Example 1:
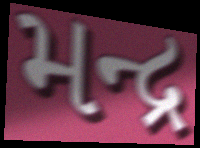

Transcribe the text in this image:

મન્દ્ર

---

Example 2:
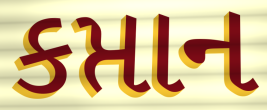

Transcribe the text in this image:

કપ્તાન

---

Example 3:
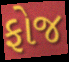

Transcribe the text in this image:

ફોજ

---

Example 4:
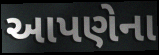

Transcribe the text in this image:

આપણેના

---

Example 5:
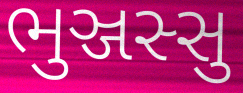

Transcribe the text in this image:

ભુઞ્જસ્સુ